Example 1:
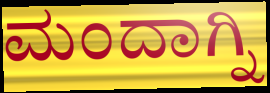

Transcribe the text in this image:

ಮಂದಾಗ್ನಿ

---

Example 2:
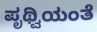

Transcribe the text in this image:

ಪೃಥ್ವಿಯಂತೆ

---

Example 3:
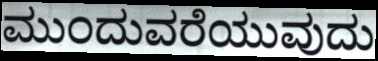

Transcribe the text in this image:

ಮುಂದುವರೆಯುವುದು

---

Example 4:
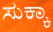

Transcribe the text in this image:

ಸುಕ್ಕಾ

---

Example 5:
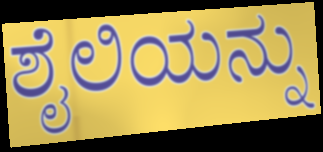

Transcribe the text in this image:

ಶೈಲಿಯನ್ನು